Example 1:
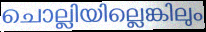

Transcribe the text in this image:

ചൊല്ലിയില്ലെങ്കിലും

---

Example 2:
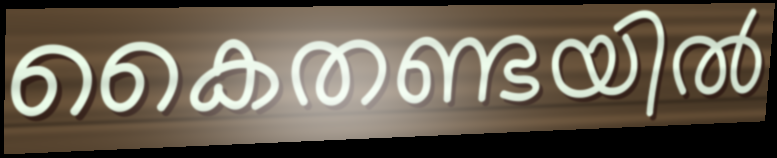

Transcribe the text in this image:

കൈതണ്ടയിൽ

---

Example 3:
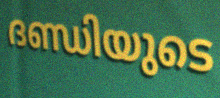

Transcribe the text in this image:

ദണ്ഡിയുടെ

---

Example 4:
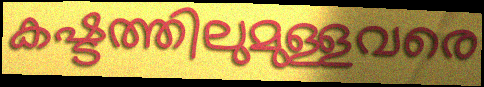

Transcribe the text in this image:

കഷ്ടത്തിലുമുള്ളവരെ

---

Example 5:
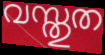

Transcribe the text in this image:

വസ്തുത